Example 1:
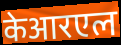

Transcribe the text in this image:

केआरएल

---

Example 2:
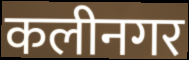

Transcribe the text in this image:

कलीनगर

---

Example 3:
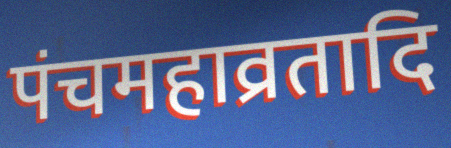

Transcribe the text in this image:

पंचमहाव्रतादि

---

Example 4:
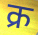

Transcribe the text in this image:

क्र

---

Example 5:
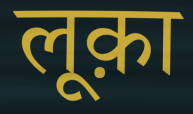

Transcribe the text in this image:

लूक़ा